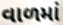
વાળમાં